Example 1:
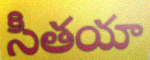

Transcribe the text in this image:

సీతయా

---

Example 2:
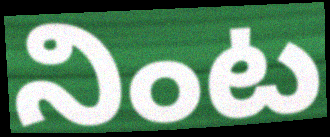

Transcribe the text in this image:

నింట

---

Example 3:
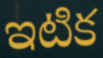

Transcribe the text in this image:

ఇటిక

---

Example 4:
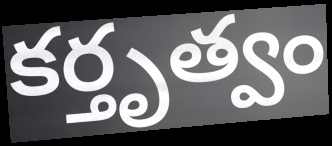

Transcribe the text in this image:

కర్తృత్వం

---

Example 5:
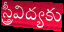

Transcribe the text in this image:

స్త్రీవిద్యకు